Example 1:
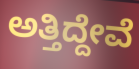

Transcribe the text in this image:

ಅತ್ತಿದ್ದೇವೆ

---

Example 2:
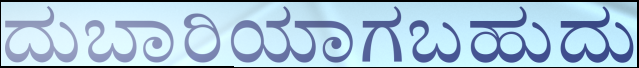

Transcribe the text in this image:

ದುಬಾರಿಯಾಗಬಹುದು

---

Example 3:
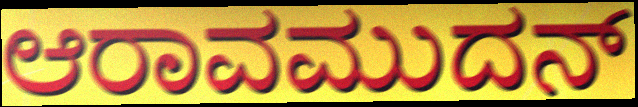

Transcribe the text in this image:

ಆರಾವಮುದನ್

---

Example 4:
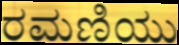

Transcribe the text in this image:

ರಮಣಿಯು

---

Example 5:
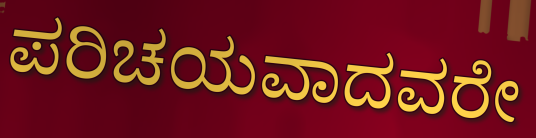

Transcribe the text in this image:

ಪರಿಚಯವಾದವರೇ